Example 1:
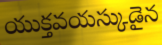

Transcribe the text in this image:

యుక్తవయస్కుడైన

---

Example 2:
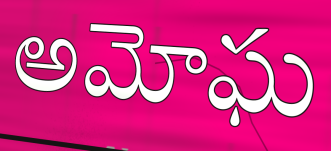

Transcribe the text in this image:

అమోఘ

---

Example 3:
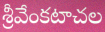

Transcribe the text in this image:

శ్రీవేంకటాచల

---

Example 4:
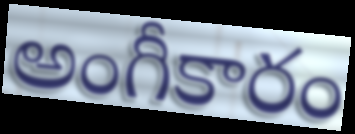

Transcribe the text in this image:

అంగీకారం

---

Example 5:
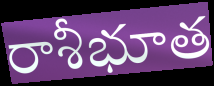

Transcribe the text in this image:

రాశీభూత